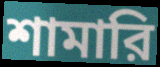
শামারি